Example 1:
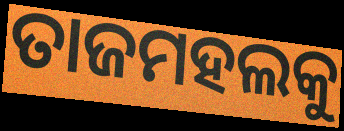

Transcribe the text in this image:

ତାଜମହଲକୁ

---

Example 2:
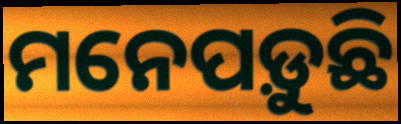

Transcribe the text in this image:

ମନେପଡ଼ୁଛି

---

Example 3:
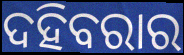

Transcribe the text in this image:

ଦହିବରାର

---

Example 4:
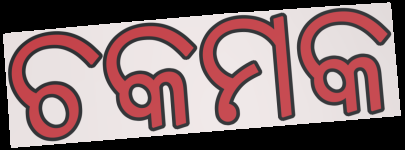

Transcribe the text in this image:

ଚକମକ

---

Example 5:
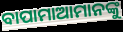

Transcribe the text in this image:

ବାପାମାଆମାନଙ୍କୁ